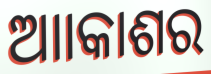
ଆାକାଶର